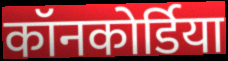
कॉनकोर्डिया